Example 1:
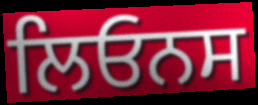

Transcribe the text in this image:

ਲਿਓਨਸ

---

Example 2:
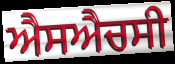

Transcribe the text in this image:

ਐਸਐਚਸੀ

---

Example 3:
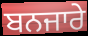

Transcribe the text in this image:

ਬਨਜਾਰੇ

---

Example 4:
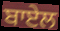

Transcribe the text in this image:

ਬਾਏਲ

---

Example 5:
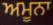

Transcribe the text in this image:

ਅਮੂਨਾ